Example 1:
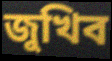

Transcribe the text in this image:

জুখিব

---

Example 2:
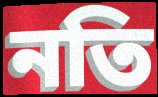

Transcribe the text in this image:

নতি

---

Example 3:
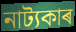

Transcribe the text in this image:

নাট্যকাৰ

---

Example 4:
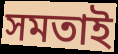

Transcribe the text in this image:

সমতাই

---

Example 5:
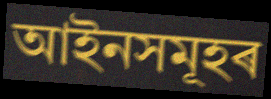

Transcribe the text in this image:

আইনসমূহৰ